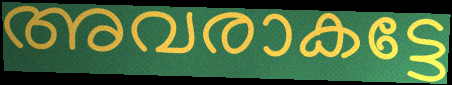
അവരാകട്ടേ